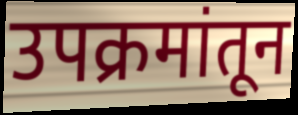
उपक्रमांतून